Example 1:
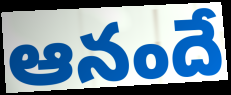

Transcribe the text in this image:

ఆనందే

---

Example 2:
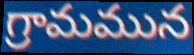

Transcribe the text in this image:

గ్రామమున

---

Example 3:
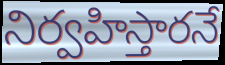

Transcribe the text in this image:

నిర్వహిస్తారనే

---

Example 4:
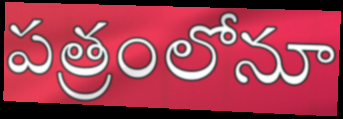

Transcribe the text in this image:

పత్రంలోనూ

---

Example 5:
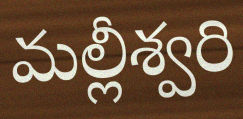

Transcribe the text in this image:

మల్లీశ్వరి